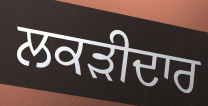
ਲਕੜੀਦਾਰ